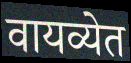
वायव्येत